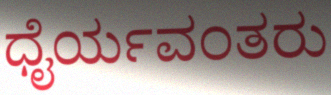
ಧೈರ್ಯವಂತರು